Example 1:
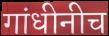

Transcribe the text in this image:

गांधीनीच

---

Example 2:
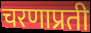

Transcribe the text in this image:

चरणाप्रती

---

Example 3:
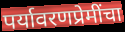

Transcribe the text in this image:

पर्यावरणप्रेमींचा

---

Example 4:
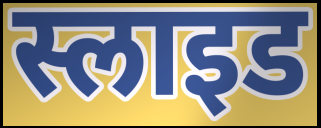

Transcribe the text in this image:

स्लाइड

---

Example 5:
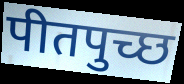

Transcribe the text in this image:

पीतपुच्छ